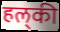
हल्की